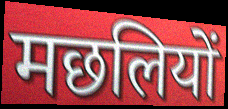
मछलियों